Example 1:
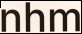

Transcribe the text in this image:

nhm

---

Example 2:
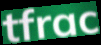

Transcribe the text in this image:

tfrac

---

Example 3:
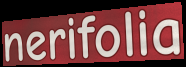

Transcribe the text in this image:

nerifolia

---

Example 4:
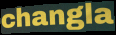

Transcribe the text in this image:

changla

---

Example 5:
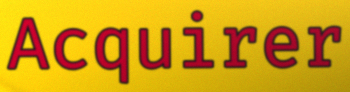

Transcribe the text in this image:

Acquirer